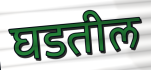
घडतील